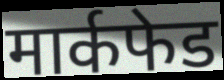
मार्कफेड